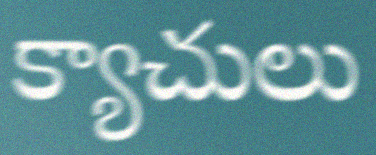
క్యాచులు